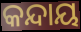
କନ୍ଦାୟ